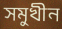
সমুখীন